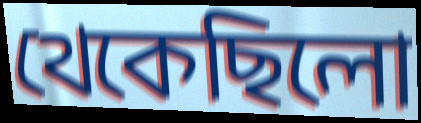
থেকেছিলো